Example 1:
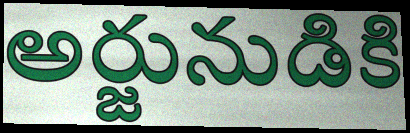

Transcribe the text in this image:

అర్జునుడికి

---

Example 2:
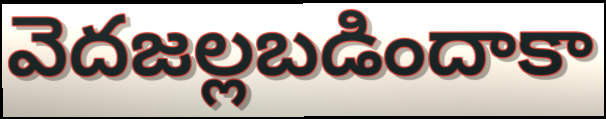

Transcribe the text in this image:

వెదజల్లబడిందాకా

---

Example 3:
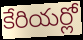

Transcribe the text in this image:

కేరియర్లో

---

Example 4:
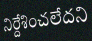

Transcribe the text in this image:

నిర్దేశించలేదని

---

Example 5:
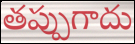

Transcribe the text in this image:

తప్పుగాదు